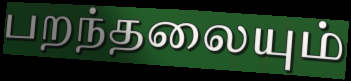
பறந்தலையும்